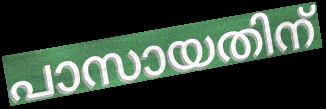
പാസായതിന്